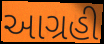
આગ્રહી